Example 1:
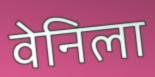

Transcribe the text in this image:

वेनिला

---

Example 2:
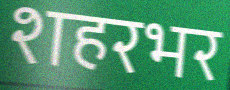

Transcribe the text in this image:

शहरभर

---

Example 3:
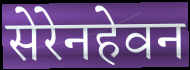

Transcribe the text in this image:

सेरेनहेवन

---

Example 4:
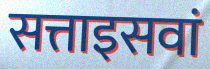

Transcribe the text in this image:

सत्ताइसवां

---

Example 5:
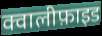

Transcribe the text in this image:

क्वालीफ़ाइड